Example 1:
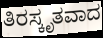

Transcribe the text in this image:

ತಿರಸ್ಕೃತವಾದ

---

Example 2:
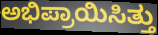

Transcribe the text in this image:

ಅಭಿಪ್ರಾಯಿಸಿತ್ತು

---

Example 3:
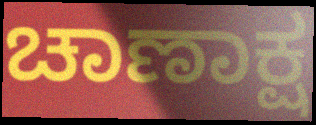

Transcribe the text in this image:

ಚಾಣಾಕ್ಷ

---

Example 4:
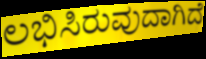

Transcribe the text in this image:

ಲಭಿಸಿರುವುದಾಗಿದೆ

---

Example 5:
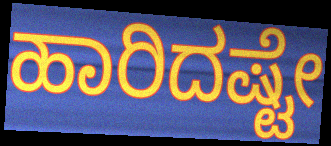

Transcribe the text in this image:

ಹಾರಿದಷ್ಟೇ